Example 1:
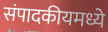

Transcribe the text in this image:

संपादकीयमध्ये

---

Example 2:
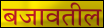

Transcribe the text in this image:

बजावतील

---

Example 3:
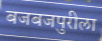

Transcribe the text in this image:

बजबजपुरीला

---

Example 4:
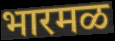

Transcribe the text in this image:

भारमळ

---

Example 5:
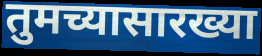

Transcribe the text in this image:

तुमच्यासारख्या